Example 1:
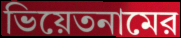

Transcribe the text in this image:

ভিয়েতনামের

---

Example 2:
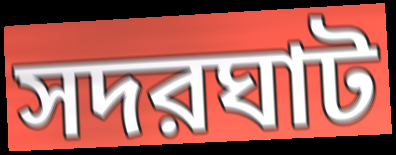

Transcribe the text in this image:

সদরঘাট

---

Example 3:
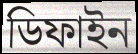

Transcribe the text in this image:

ডিফাইন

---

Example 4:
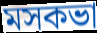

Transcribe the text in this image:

মসকভা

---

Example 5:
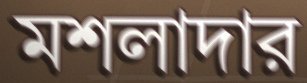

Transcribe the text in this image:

মশলাদার